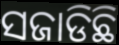
ସଜାଡିଛି